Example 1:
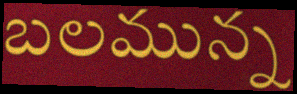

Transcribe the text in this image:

బలమున్న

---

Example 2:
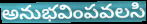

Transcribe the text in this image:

అనుభవింపవలసి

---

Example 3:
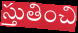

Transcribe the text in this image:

స్తుతించి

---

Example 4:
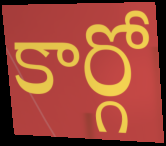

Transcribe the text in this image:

కార్గో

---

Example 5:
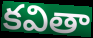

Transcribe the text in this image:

కవితా